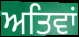
ਅਤਿਵਾਂ